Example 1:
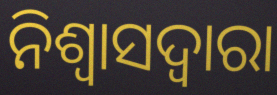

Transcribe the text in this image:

ନିଶ୍ୱାସଦ୍ୱାରା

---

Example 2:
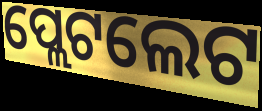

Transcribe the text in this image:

ପ୍ଲେଟଲେଟ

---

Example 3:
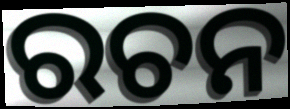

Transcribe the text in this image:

ରଚନ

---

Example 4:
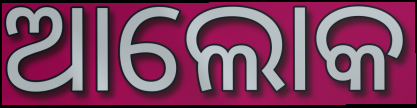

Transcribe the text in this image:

ଆଲୋକ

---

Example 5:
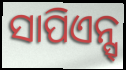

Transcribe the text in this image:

ସାପିଏନ୍ସ୍